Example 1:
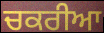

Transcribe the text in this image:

ਚਕਰੀਆ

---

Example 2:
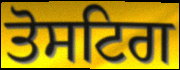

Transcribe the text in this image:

ਤੋਸਟਿਗ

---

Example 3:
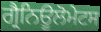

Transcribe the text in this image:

ਗ੍ਰੈਨਿਊਲੋਮੇਟਸ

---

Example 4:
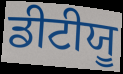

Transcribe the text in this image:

ਡੀਟੀਯੂ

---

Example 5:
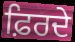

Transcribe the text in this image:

ਫ਼ਿਰਦੇ